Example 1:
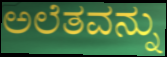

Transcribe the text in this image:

ಅಲೆತವನ್ನು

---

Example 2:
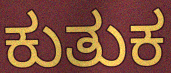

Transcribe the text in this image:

ಕುತುಕ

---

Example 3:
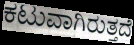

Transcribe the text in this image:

ಕಟುವಾಗಿರುತ್ತದೆ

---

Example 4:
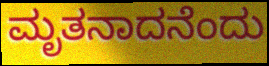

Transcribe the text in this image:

ಮೃತನಾದನೆಂದು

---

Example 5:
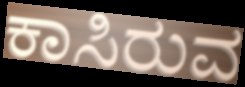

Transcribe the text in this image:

ಕಾಸಿರುವ